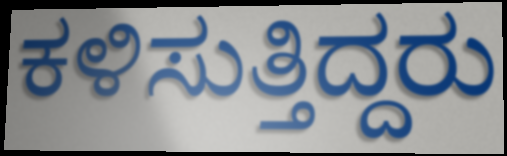
ಕಳಿಸುತ್ತಿದ್ದರು